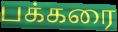
பக்கரை